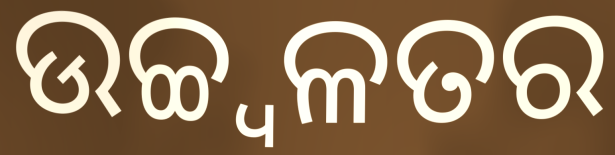
ଉଚ୍ଚ୍ୱଳତର